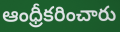
ఆంధ్రీకరించారు